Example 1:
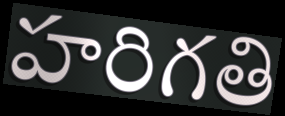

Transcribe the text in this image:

హరిగతి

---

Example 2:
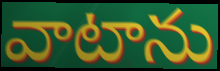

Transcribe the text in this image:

వాటాను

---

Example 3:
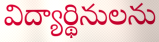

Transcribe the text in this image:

విద్యార్థినులను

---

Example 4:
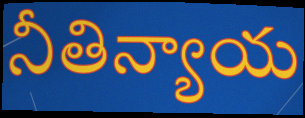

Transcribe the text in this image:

నీతిన్యాయ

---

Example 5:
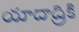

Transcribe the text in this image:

యాదాద్రికి